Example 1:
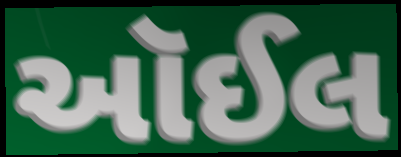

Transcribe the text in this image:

આૅઈલ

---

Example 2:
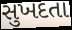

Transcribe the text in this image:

સુખદતા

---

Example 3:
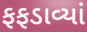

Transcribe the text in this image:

ફફડાવ્યાં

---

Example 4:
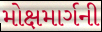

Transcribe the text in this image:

મોક્ષમાર્ગની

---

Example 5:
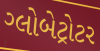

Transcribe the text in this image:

ગ્લોબેટ્રોટર